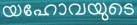
യഹോവയുടെ